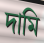
দামি